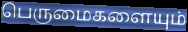
பெருமைகளையும்